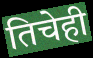
तिचेही